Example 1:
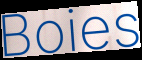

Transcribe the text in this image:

Boies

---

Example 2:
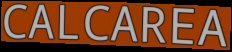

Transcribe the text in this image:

CALCAREA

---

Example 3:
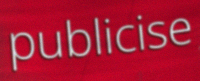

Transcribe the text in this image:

publicise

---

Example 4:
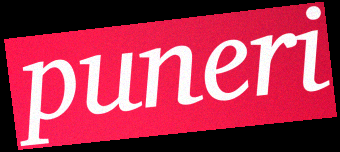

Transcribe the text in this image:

puneri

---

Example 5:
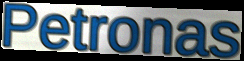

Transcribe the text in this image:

Petronas